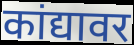
कांद्यावर